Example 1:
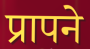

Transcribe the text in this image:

प्रापने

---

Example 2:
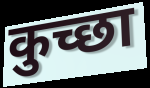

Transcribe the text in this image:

कुच्छा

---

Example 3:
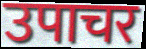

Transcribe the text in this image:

उपाचर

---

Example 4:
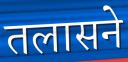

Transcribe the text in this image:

तलासने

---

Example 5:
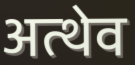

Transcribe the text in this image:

अत्थेव